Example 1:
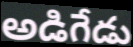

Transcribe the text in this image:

అడిగేడు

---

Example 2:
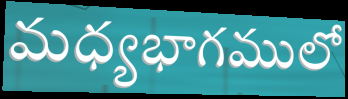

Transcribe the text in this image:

మధ్యభాగములో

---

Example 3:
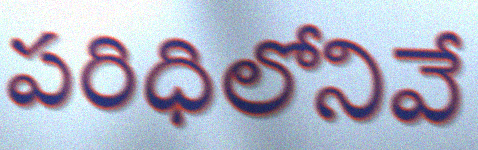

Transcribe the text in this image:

పరిధిలోనివే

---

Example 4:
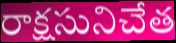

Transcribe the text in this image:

రాక్షసునిచేత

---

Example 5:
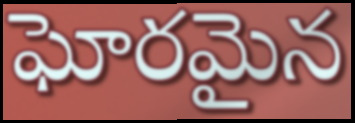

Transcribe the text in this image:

ఘోరమైన